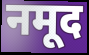
नमूद